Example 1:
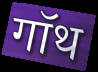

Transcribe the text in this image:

गॉथ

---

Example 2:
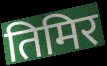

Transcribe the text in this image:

तिमिर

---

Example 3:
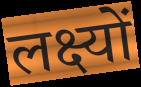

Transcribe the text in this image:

लक्ष्‍यों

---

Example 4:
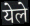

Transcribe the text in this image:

येले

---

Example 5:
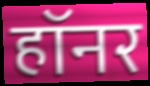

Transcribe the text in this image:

हॉनर